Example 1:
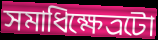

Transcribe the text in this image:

সমাধিক্ষেত্ৰটো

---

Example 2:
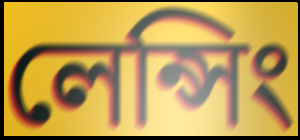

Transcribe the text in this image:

লেন্সিং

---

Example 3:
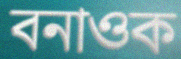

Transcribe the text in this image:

বনাওক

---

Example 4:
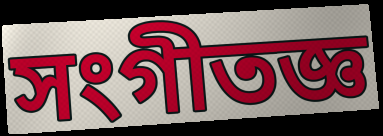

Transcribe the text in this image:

সংগীতজ্ঞ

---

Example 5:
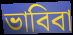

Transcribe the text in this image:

ভাবিবা